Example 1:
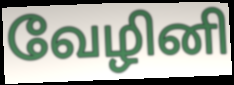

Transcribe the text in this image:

வேழினி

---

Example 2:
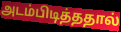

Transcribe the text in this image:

அடம்பிடித்ததால்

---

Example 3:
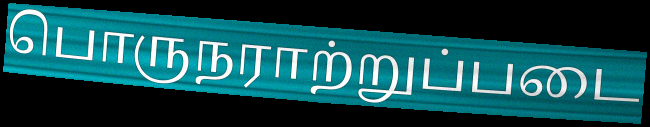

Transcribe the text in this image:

பொருநராற்றுப்படை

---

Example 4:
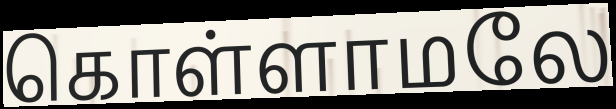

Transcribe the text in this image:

கொள்ளாமலே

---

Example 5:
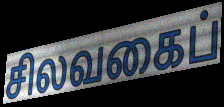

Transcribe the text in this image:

சிலவகைப்